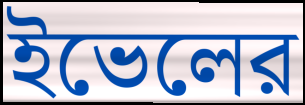
ইভেলের